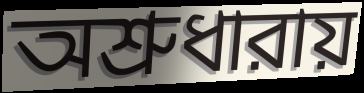
অশ্রুধারায়